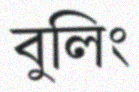
বুলিং